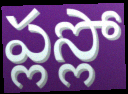
ప్లస్లో